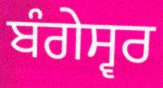
ਬੰਗੇਸ੍ਵਰ